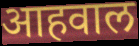
आहवाल